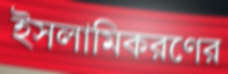
ইসলামিকরণের